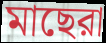
মাছেরা